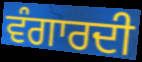
ਵੰਗਾਰਦੀ